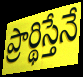
ప్రార్థిస్తేనే